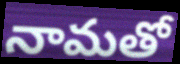
నామతో